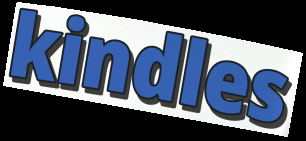
kindles